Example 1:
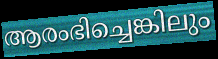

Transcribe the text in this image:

ആരംഭിച്ചെങ്കിലും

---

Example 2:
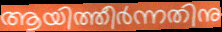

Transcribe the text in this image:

ആയിത്തീർന്നതിനു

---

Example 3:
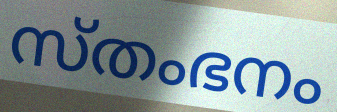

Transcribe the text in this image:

സ്തംഭനം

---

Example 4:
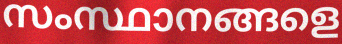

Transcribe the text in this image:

സംസ്ഥാനങ്ങളെ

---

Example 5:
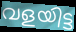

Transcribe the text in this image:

വളയിട്ട